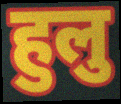
हुलु